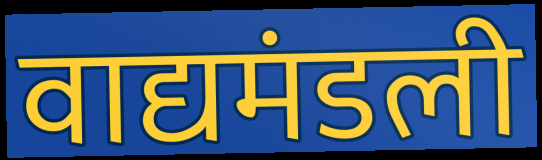
वाद्यमंडली